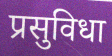
प्रसुविधा